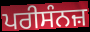
ਪਰੀਸੰਨਜ਼